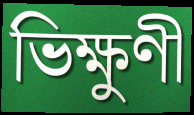
ভিক্ষুণী